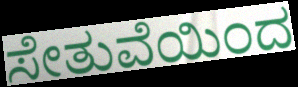
ಸೇತುವೆಯಿಂದ